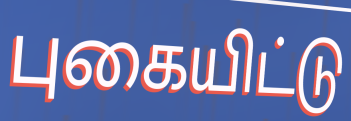
புகையிட்டு